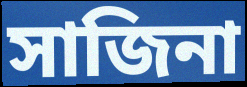
সাজিনা